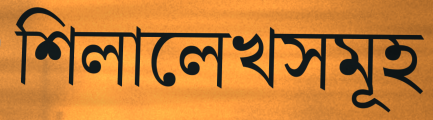
শিলালেখসমূহ